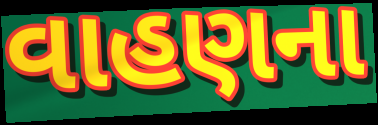
વાહણના